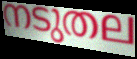
നടുതല